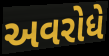
અવરોધે